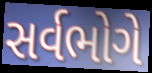
સર્વભોગે